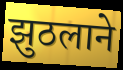
झुठलाने